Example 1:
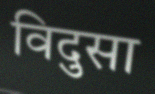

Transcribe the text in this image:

विदुसा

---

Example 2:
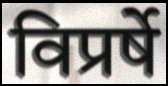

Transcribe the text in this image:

विप्रर्षे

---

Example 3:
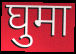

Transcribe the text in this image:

घुमा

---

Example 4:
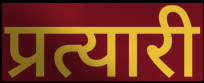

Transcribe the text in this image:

प्रत्यारी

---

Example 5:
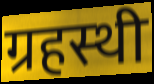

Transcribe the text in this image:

ग्रहस्थी